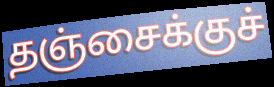
தஞ்சைக்குச்